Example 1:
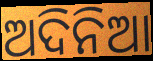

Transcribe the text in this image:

ଅଦିନିଆ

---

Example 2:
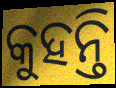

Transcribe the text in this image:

କୁହନ୍ତି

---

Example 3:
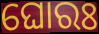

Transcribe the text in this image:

ଘୋରଃ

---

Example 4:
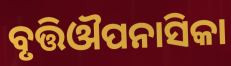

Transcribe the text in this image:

ବୃତ୍ତିଔପନାସିକା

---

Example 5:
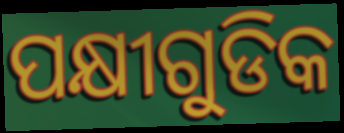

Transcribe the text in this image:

ପକ୍ଷୀଗୁଡିକ